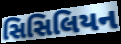
સિસિલિયન